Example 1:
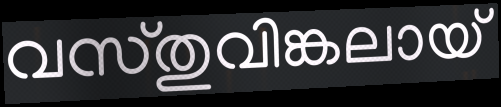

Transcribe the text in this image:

വസ്തുവിങ്കലായ്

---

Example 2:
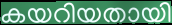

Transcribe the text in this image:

കയറിയതായി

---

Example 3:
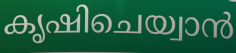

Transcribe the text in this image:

കൃഷിചെയ്വാൻ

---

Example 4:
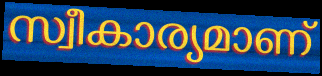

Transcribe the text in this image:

സ്വീകാര്യമാണ്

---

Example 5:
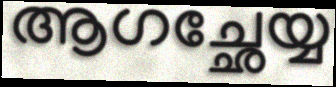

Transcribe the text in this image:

ആഗച്ഛേയ്യ